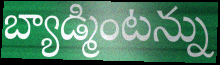
బ్యాడ్మింటన్ను